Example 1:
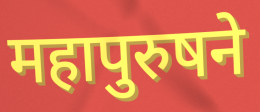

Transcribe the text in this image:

महापुरुषने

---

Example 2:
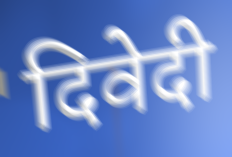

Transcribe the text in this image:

दिवेदी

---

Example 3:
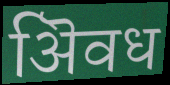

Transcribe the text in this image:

ऄिवध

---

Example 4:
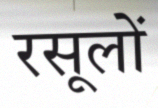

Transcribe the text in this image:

रसूलों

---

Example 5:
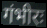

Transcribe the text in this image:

गंभीरः